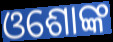
ଓଶୋଙ୍କ